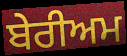
ਬੇਰੀਅਮ